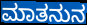
ಮಾತನುನ